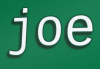
joe